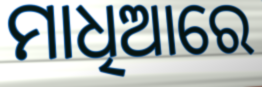
ମାଧିଆରେ